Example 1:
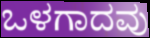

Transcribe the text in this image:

ಒಳಗಾದವು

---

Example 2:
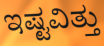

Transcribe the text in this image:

ಇಷ್ಟವಿತ್ತು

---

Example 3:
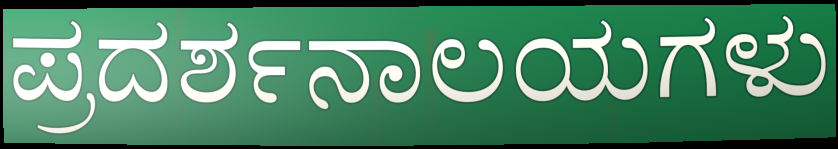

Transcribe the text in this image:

ಪ್ರದರ್ಶನಾಲಯಗಳು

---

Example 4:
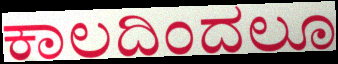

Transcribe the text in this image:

ಕಾಲದಿಂದಲೂ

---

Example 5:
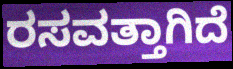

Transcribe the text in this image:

ರಸವತ್ತಾಗಿದೆ